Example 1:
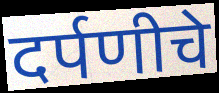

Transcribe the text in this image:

दर्पणीचे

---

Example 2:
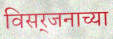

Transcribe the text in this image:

विसर्जनाच्या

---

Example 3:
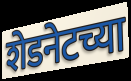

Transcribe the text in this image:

शेडनेटच्या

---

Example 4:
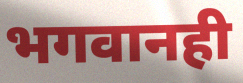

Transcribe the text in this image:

भगवानही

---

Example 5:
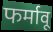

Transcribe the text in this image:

फर्मावू